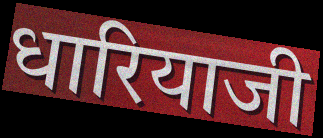
धारियाजी